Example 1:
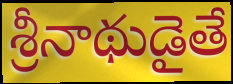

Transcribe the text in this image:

శ్రీనాథుడైతే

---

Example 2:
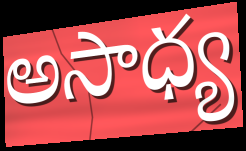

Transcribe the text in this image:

అసాధ్య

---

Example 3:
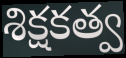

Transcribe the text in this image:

శిక్షకత్వ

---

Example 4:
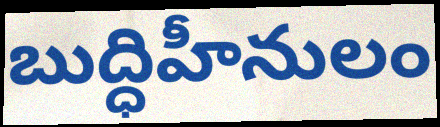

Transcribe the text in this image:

బుద్ధిహీనులం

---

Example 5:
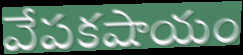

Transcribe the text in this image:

వేపకషాయం